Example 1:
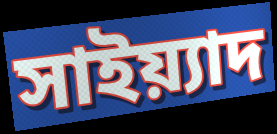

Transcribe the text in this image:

সাইয়্যাদ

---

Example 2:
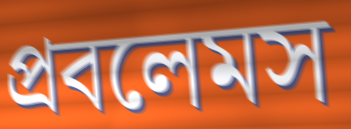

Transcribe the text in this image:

প্রবলেমস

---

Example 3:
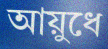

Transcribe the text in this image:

আয়ুধে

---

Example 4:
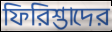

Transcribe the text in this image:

ফিরিশ্তাদের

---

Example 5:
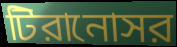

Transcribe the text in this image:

টিরানোসর